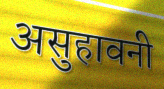
असुहावनी